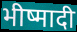
भीष्मादी